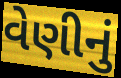
વેણીનું